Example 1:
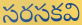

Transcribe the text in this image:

సరసకవి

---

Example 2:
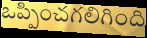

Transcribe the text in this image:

ఒప్పించగలిగింది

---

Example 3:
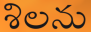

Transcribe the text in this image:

శిలను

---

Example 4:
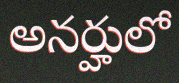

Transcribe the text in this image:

అనర్హులో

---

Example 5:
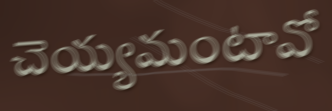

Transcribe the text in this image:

చెయ్యమంటావో